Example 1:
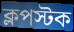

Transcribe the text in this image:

ক্লপস্টক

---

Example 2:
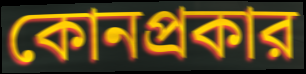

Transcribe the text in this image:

কোনপ্রকার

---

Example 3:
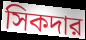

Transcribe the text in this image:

সিকদার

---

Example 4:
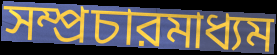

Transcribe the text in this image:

সম্প্রচারমাধ্যম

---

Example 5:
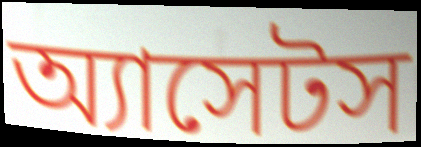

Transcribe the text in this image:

অ্যাসেটস